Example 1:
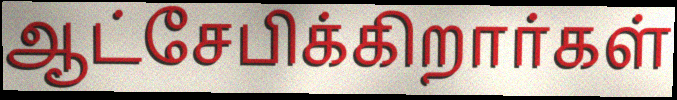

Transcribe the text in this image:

ஆட்சேபிக்கிறார்கள்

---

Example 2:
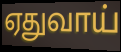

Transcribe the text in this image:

ஏதுவாய்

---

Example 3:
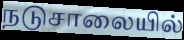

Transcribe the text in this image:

நடுசாலையில்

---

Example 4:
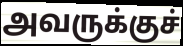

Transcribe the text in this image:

அவருக்குச்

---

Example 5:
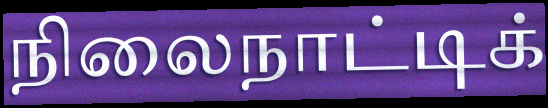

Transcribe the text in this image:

நிலைநாட்டிக்